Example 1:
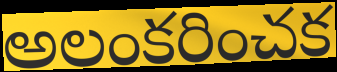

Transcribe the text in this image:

అలంకరించక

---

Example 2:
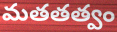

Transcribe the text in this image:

మతతత్వం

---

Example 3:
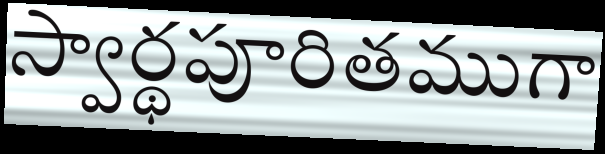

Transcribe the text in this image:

స్వార్థపూరితముగా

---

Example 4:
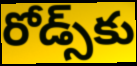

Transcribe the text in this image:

రోడ్స్‌కు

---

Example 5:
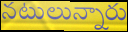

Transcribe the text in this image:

నటులున్నారు